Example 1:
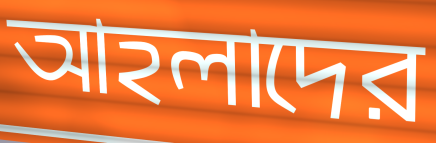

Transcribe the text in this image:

আহলাদের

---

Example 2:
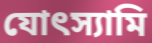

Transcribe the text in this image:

যোৎস্যামি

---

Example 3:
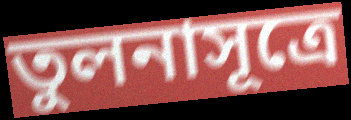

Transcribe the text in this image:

তুলনাসূত্রে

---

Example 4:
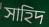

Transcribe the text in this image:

সাহিদ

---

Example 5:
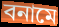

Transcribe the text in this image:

বনামে